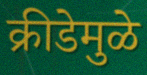
क्रीडेमुळे